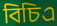
বিচিএ